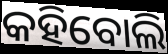
କହିବୋଲି